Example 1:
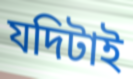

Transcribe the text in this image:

যদিটাই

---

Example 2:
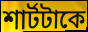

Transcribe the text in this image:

শার্টটাকে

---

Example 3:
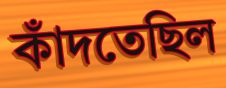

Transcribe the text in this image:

কাঁদতেছিল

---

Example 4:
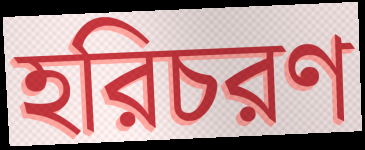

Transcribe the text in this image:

হরিচরণ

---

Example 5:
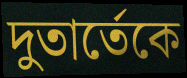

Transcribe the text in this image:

দুতার্তেকে